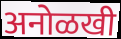
अनोळखी